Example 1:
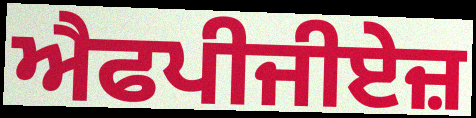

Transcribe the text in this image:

ਐਫਪੀਜੀਏਜ਼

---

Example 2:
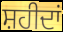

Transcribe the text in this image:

ਸ਼ਹੀਦਾਂ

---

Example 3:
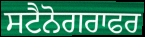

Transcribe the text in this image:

ਸਟੈਨੋਗਰਾਫਰ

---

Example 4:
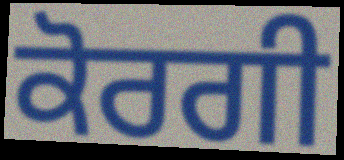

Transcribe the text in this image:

ਕੋਰਗੀ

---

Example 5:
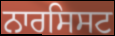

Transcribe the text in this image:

ਨਾਰਸਿਸਟ